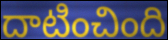
దాటించింది